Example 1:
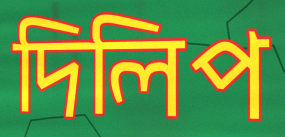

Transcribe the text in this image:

দিলিপ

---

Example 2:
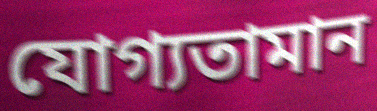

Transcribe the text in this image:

যোগ্যতামান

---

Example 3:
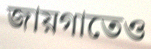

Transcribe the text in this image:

জায়গাতেও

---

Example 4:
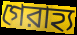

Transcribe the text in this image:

গেরাহ্য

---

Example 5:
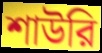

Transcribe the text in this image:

শাউরি